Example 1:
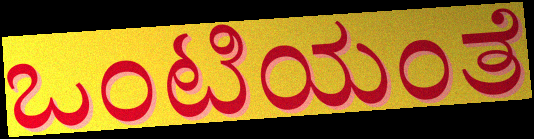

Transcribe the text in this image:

ಒಂಟಿಯಂತೆ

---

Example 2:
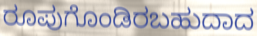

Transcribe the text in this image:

ರೂಪುಗೊಂಡಿರಬಹುದಾದ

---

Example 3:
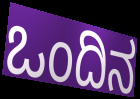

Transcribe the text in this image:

ಒಂದಿನ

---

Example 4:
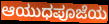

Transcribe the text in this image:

ಆಯುಧಪೂಜೆಯ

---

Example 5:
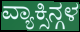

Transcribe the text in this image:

ವ್ಯಾಕ್ಸಿನ್ಗಳ